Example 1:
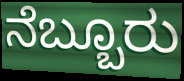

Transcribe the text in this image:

ನೆಬ್ಬೂರು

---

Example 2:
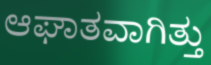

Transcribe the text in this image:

ಆಘಾತವಾಗಿತ್ತು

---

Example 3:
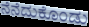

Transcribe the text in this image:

ನೆನೆದುಕೊಂಡು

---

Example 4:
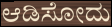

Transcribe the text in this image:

ಆಡಿಸೋದು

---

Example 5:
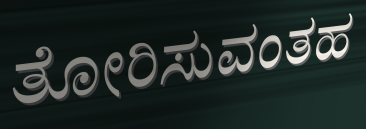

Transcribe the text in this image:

ತೋರಿಸುವಂತಹ